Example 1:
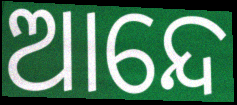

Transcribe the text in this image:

ଆନ୍ଦେ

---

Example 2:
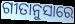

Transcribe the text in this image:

ଗୀତାନୁସାରେ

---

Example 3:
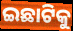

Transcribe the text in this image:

ଇଛାଟିକୁ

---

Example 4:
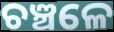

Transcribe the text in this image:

ଚଞ୍ଚଳେ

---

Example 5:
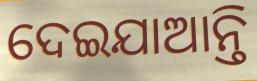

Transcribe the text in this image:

ଦେଇଯାଆନ୍ତି